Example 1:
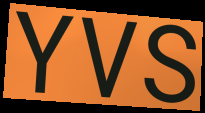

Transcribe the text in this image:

YVS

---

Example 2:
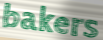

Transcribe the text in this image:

bakers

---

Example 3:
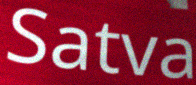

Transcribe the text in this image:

Satva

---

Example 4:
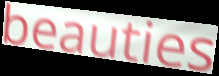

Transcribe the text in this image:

beauties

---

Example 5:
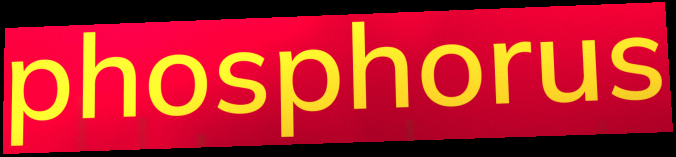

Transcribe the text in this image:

phosphorus